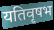
यतिवृषभ